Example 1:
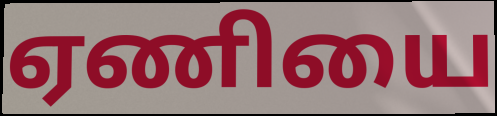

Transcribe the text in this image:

ஏணியை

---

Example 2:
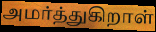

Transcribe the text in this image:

அமர்த்துகிறாள்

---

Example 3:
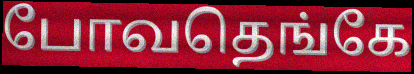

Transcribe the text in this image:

போவதெங்கே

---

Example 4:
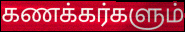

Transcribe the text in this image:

கணக்கர்களும்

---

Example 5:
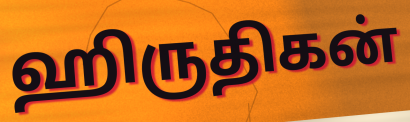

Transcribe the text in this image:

ஹிருதிகன்